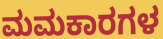
ಮಮಕಾರಗಳ